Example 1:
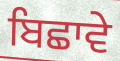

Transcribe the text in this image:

ਬਿਛਾਵੇ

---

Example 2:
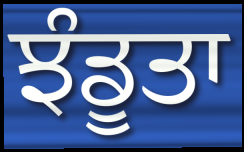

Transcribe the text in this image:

ਝੰਡੂਤਾ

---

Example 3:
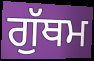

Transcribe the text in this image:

ਗੁੱਥਮ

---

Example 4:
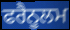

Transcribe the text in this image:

ਫਰੈਨੂਲਮ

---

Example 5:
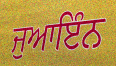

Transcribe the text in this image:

ਜੁਆਇੰਨ